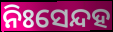
ନିଃସେନ୍ଦହ